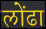
लोंढा